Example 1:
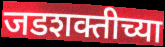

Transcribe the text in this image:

जडशक्तीच्या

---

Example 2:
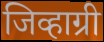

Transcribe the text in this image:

जिव्हाग्री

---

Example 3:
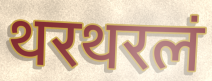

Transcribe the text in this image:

थरथरलं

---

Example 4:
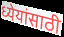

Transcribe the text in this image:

ध्येयांसाठी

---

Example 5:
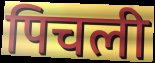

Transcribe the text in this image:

पिचली